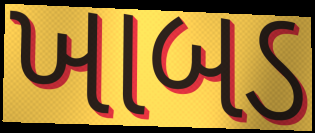
ખાબડ